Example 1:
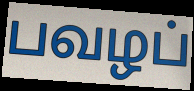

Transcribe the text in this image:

பவழப்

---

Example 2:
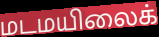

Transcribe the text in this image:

மடமயிலைக்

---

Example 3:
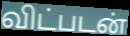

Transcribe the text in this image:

விட்படன்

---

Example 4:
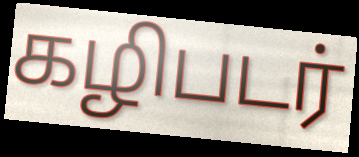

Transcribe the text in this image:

கழிபடர்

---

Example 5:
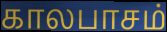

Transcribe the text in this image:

காலபாசம்